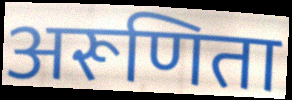
अरूणिता